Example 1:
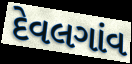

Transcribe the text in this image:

દેવલગાંવ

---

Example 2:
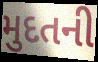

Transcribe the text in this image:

મુદતની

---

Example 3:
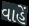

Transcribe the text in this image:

વાહેં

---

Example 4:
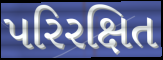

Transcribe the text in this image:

પરિરક્ષિત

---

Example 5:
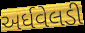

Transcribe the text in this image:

અર્ધવેલડી